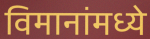
विमानांमध्ये